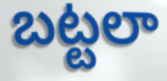
బట్టలా